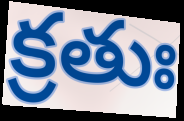
క్రతుః